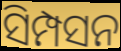
ସିମ୍ପସନ